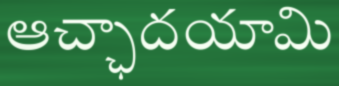
ఆచ్ఛాదయామి